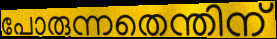
പോരുന്നതെന്തിന്